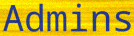
Admins